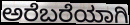
ಅರೆಬರೆಯಾಗಿ